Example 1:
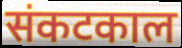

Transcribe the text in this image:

संकटकाल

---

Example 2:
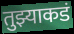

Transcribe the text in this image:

तुझ्याकडं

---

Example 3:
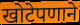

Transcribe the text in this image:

खोटेपणाने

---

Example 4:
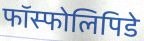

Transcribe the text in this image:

फॉस्फोलिपिडे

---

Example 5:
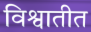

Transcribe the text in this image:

विश्वातीत